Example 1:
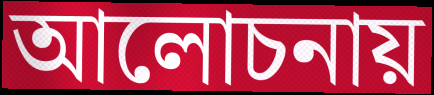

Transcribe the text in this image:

আলোচনায়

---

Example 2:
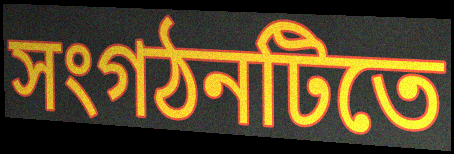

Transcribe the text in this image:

সংগঠনটিতে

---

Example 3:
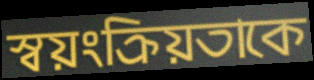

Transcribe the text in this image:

স্বয়ংক্রিয়তাকে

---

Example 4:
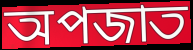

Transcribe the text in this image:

অপজাত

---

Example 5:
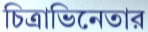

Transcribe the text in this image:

চিত্রাভিনেতার